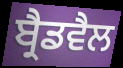
ਬ੍ਰੈਡਵੈਲ